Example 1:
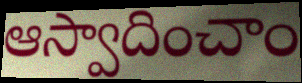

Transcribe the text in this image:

ఆస్వాదించాం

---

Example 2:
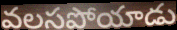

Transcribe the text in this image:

వలసపోయాడు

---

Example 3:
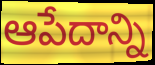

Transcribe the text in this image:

ఆపేదాన్ని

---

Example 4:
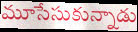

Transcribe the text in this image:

మూసేసుకున్నాడు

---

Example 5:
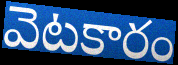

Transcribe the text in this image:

వెటకారం